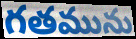
గతమును